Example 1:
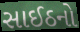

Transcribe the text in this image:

સાઈઠનો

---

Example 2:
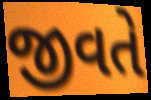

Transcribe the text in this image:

જીવતે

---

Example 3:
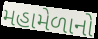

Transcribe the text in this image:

મહામેળાનો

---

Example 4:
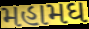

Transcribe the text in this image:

મહામઘ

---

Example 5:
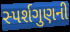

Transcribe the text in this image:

સ્પર્શગુણની